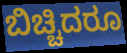
ಬಿಚ್ಚಿದರೂ